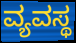
ವ್ಯವಸ್ಥ